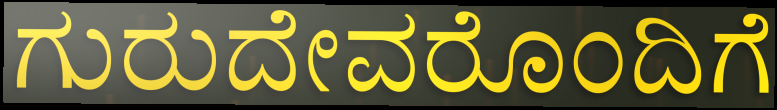
ಗುರುದೇವರೊಂದಿಗೆ